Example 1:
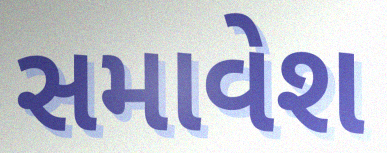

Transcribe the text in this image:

સમાવેશ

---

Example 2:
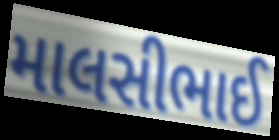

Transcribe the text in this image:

માલસીભાઈ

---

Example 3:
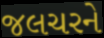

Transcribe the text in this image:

જલચરને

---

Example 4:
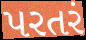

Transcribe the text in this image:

પરતરં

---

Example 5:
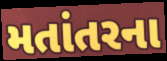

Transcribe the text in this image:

મતાંતરના